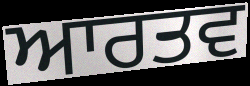
ਆਰਤਵ